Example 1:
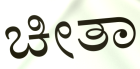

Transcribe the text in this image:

ಚೀತಾ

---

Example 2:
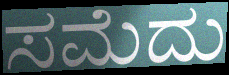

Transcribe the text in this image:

ಸಮೆದು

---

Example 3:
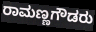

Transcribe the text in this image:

ರಾಮಣ್ಣಗೌಡರು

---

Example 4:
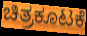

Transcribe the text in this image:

ಚಿತ್ರಕೂಟಕೆ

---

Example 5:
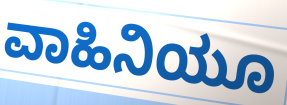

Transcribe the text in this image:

ವಾಹಿನಿಯೂ